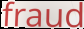
fraud